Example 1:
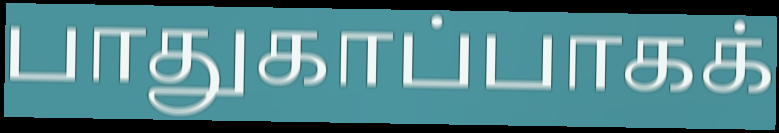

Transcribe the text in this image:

பாதுகாப்பாகக்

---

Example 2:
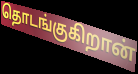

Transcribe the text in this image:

தொடங்குகிறான்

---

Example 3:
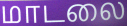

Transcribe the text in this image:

மாடலை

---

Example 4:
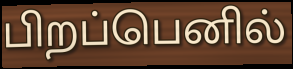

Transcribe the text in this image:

பிறப்பெனில்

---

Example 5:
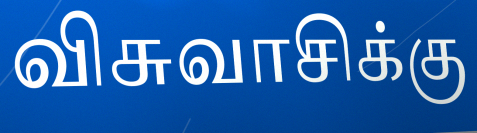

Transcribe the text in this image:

விசுவாசிக்கு